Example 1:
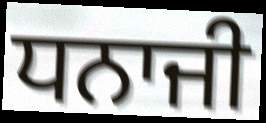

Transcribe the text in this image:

ਧਨਾਜੀ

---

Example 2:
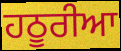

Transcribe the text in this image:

ਹਠੂਰੀਆ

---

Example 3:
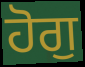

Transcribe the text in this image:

ਹੋਗੁ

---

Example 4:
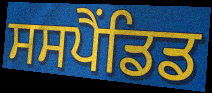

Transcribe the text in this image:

ਸਸਪੈਂਡਿਡ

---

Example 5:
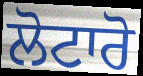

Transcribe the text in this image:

ਲੋਟਾਰੋ